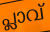
പ്ലാവ്